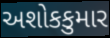
અશોકકુમાર